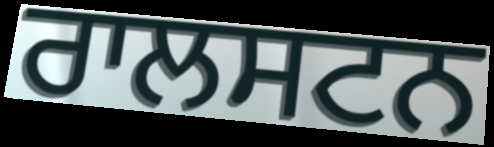
ਰਾਲਸਟਨ